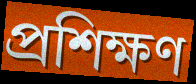
প্রশিক্ষণ